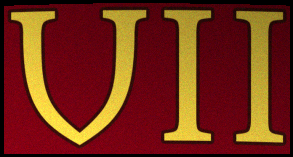
UII